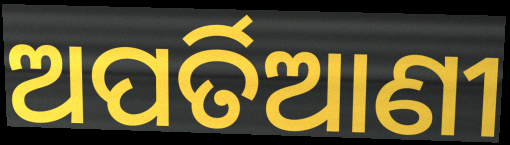
ଅପର୍ତିଆଣୀ